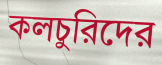
কলচুরিদের